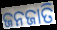
ଜନଜାତି